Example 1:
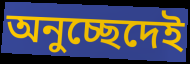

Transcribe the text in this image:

অনুচ্ছেদেই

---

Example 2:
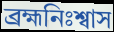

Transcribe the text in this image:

ব্রহ্মনিঃশ্বাস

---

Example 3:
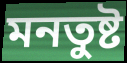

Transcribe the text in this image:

মনতুষ্ট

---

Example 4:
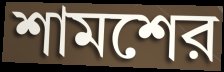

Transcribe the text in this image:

শামশের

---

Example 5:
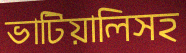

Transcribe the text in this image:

ভাটিয়ালিসহ